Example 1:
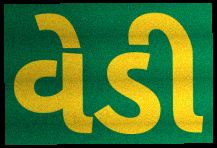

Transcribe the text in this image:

વેડી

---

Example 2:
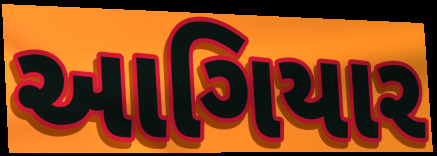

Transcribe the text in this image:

આગિયાર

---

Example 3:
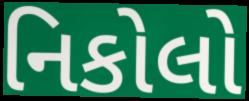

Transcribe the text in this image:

નિકોલો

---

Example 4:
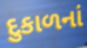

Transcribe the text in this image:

દુકાળનાં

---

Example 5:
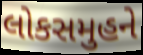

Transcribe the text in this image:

લોકસમુહને